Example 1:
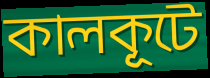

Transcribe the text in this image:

কালকূটে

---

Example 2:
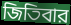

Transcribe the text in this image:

জিতিবার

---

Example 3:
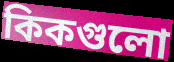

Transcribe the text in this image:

কিকগুলো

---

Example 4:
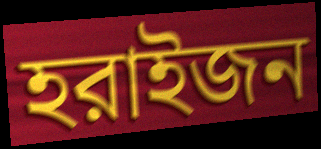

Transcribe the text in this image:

হরাইজন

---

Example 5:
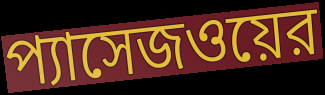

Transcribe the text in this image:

প্যাসেজওয়ের